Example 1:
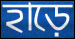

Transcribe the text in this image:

হাড়ে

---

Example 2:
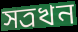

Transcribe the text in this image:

সত্ৰখন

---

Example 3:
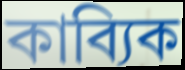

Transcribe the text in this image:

কাব্যিক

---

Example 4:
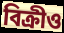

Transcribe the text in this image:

বিক্ৰীও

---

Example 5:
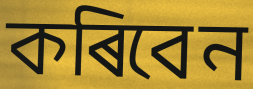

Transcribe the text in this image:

কৰিবেন